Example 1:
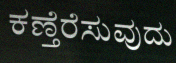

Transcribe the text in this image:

ಕಣ್ತೆರೆಸುವುದು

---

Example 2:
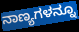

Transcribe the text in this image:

ನಾಣ್ಯಗಳನ್ನೂ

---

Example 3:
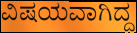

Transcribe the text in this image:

ವಿಷಯವಾಗಿದ್ದ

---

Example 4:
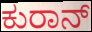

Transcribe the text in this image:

ಕುರಾನ್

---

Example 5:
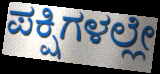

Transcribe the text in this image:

ಪಕ್ಷಿಗಳಲ್ಲೇ